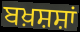
ਬਖ਼ਸ਼ਸ਼ਾਂ